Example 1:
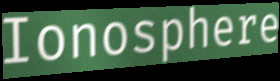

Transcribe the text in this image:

Ionosphere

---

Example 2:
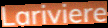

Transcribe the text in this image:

Lariviere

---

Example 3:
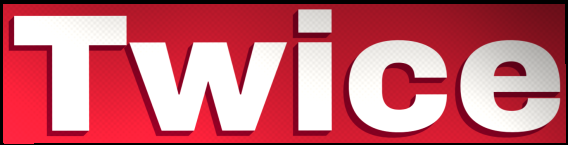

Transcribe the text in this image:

Twice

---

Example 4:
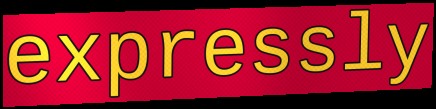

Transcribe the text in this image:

expressly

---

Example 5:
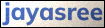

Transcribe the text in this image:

jayasree